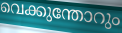
വെക്കുന്തോറും